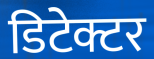
डिटेक्टर